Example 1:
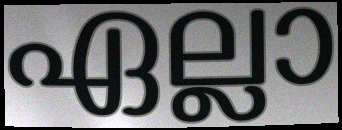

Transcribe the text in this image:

ഏല്ലാ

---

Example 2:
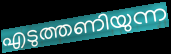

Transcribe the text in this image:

എടുത്തണിയുന്ന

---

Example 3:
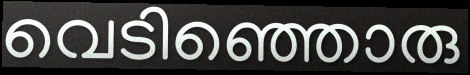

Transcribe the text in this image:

വെടിഞ്ഞൊരു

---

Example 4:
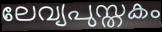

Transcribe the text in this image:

ലേവ്യപുസ്തകം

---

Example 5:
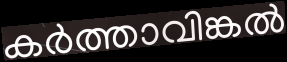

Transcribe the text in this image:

കർത്താവിങ്കൽ